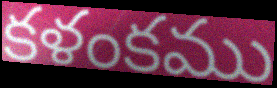
కళంకము